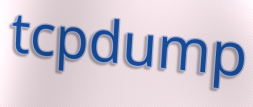
tcpdump